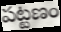
పట్టణం